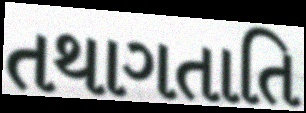
તથાગતાતિ